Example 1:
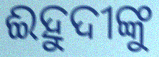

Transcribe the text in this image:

ଈହୁଦୀଙ୍କୁ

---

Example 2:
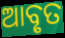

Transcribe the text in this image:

ଆବୃତ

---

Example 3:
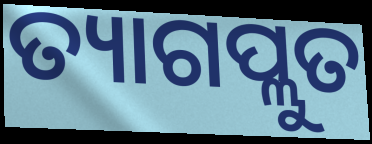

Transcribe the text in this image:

ତ୍ୟାଗପ୍ଲୁତ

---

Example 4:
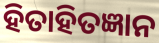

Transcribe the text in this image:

ହିତାହିତଜ୍ଞାନ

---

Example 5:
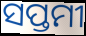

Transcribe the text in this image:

ସପ୍ତମୀ